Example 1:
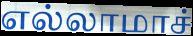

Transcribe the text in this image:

எல்லாமாச்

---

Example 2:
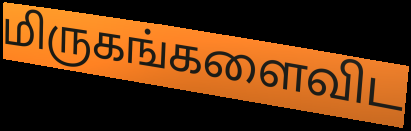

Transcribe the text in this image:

மிருகங்களைவிட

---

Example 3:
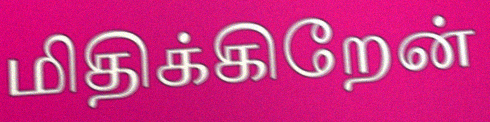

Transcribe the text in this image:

மிதிக்கிறேன்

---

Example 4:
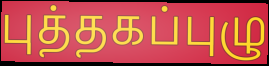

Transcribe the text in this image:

புத்தகப்புழு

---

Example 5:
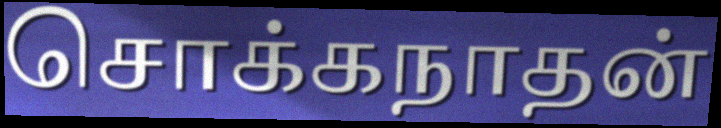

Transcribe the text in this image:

சொக்கநாதன்